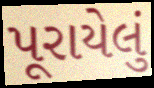
પૂરાયેલું